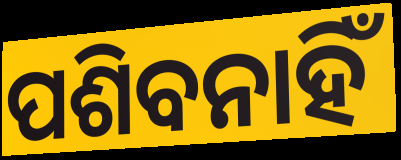
ପଶିବନାହିଁ